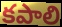
కపాలి